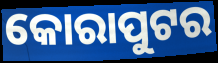
କୋରାପୁଟର